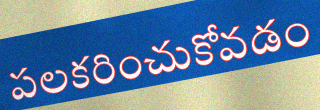
పలకరించుకోవడం